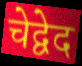
चेद्वेद